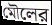
মৌলের